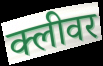
क्लीवर